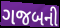
ગજબની